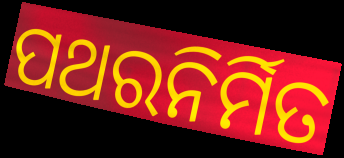
ପଥରନିର୍ମିତ